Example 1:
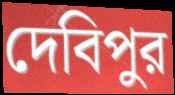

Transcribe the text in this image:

দেবিপুর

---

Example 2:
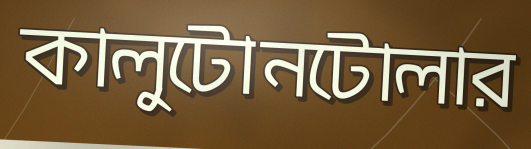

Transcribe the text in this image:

কালুটোনটোলার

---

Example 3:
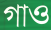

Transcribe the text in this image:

গাও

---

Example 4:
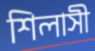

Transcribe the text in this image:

শিলাসী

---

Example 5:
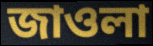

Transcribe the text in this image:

জাওলা